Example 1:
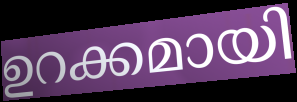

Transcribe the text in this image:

ഉറക്കമായി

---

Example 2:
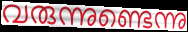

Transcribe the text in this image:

വരുന്നുണ്ടെന്നു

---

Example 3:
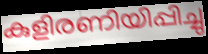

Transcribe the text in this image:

കുളിരണിയിപ്പിച്ചു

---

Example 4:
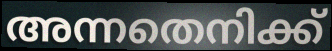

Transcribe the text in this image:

അന്നതെനിക്ക്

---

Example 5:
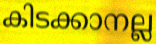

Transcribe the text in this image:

കിടക്കാനല്ല